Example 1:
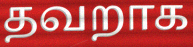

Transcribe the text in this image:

தவறாக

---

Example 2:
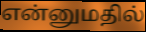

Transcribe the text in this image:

என்னுமதில்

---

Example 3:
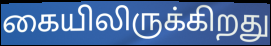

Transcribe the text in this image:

கையிலிருக்கிறது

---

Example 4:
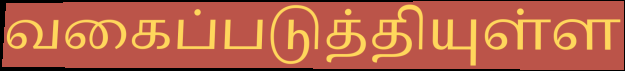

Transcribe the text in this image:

வகைப்படுத்தியுள்ள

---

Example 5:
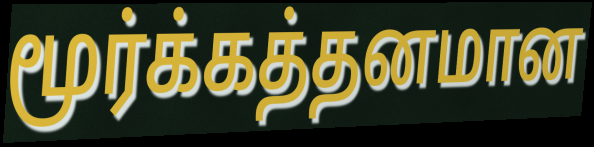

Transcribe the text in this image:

மூர்க்கத்தனமான